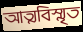
আত্মবিস্মৃত